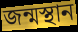
জন্মস্থান